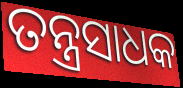
ତନ୍ତ୍ରସାଧକ